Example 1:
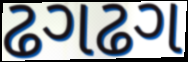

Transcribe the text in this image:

ઢગઢગ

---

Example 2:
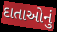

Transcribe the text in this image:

દાતાઓનું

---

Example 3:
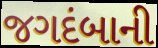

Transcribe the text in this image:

જગદંબાની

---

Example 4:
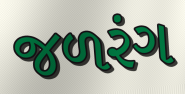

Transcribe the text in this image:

જળરંગ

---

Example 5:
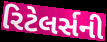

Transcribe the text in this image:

રિટેલર્સની